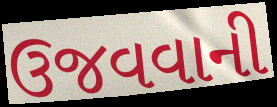
ઉજવવાની